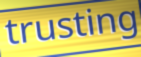
trusting